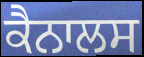
ਕੈਨਾਲਸ